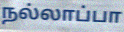
நல்லாப்பா